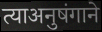
त्याअनुषंगाने